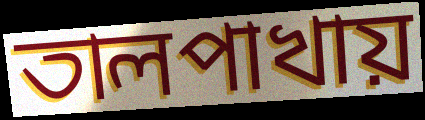
তালপাখায়